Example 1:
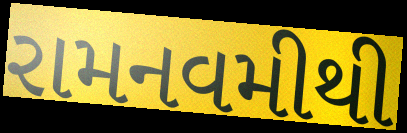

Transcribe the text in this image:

રામનવમીથી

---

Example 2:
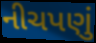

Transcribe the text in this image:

નીચપણું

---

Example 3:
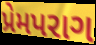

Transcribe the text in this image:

પ્રેમપરાગ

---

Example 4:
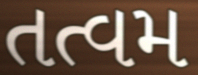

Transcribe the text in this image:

તત્વમ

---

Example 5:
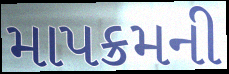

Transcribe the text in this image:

માપક્રમની